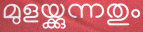
മുളയ്ക്കുന്നതും